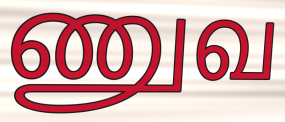
ணுவ